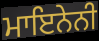
ਮਾਇਨੇਨੀ